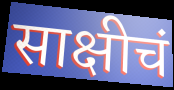
साक्षीचं